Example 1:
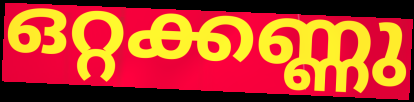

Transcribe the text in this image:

ഒറ്റക്കണ്ണു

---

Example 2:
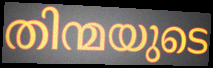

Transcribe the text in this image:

തിന്മയുടെ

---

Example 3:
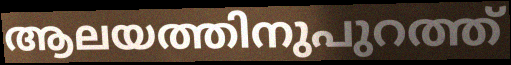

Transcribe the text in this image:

ആലയത്തിനുപുറത്ത്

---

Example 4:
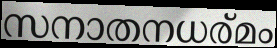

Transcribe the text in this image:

സനാതനധര്മം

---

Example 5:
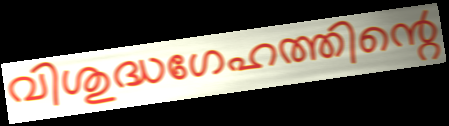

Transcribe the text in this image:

വിശുദ്ധഗേഹത്തിന്റെ